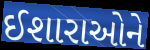
ઈશારાઓને